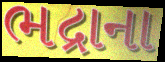
ભદ્રાના